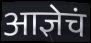
आज्ञेचं